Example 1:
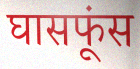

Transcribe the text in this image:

घासफूंस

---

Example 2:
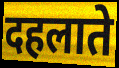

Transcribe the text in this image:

दहलाते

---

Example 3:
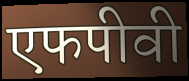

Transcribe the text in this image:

एफपीवी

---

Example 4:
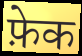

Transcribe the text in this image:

फ़ेक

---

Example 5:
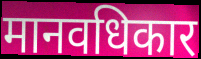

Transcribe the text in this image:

मानवधिकार